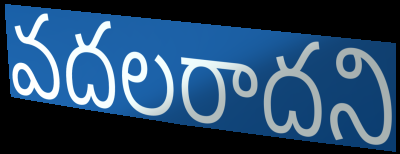
వదలరాదని